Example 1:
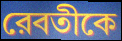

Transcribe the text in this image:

রেবতীকে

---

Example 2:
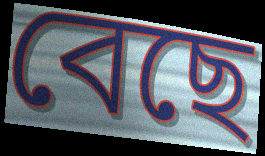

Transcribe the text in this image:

বেছে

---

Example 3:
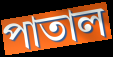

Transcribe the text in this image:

পাতাল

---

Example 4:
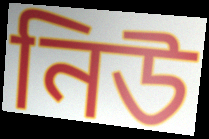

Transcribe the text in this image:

নিউ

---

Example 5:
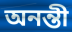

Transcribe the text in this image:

অনন্তী